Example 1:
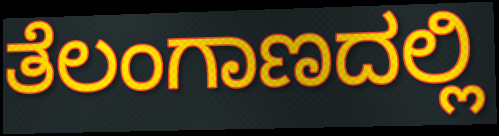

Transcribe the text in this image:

ತೆಲಂಗಾಣದಲ್ಲಿ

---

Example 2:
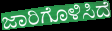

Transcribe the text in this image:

ಜಾರಿಗೊಳಿಸಿದೆ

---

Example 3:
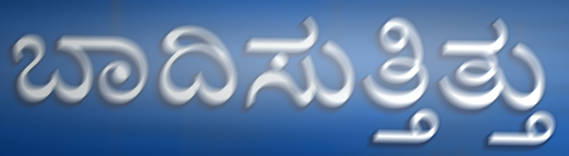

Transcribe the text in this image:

ಬಾದಿಸುತ್ತಿತ್ತು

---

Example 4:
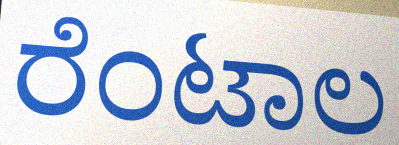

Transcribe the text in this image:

ರೆಂಟಾಲ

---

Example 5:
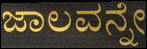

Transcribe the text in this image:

ಜಾಲವನ್ನೇ